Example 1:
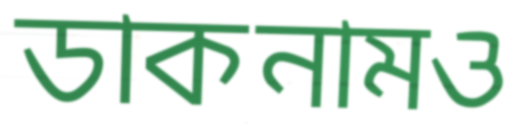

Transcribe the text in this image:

ডাকনামও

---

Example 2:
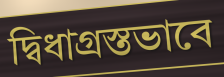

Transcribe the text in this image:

দ্বিধাগ্রস্তভাবে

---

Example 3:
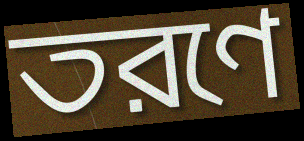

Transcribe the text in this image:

তরণে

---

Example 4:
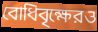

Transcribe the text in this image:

বোধিবৃক্ষেরও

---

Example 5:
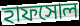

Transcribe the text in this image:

হাফসোল